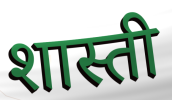
शास्ती